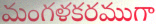
మంగళకరముగా